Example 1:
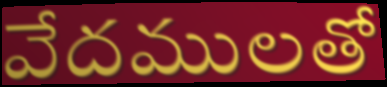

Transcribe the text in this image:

వేదములతో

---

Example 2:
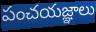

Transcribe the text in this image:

పంచయజ్ఞాలు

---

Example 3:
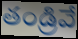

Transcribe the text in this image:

తండ్రివే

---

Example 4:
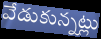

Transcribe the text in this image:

వేడుకున్నట్లు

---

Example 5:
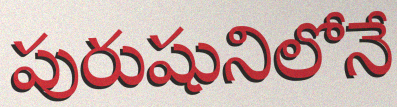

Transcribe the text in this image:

పురుషునిలోనే